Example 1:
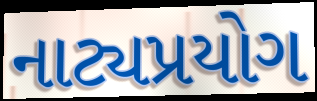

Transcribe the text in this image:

નાટ્યપ્રયોગ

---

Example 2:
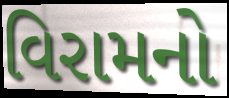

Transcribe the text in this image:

વિરામનો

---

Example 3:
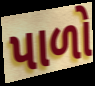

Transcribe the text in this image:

પાળો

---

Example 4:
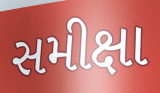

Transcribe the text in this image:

સમીક્ષા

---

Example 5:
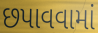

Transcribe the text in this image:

છપાવવામાં